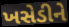
ખસેડીને